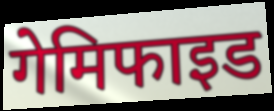
गेमिफाइड